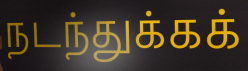
நடந்துக்கக்